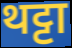
थट्टा